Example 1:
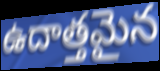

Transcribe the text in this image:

ఉదాత్తమైన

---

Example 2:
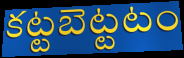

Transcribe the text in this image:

కట్టబెట్టటం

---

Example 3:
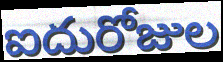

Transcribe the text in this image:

ఐదురోజుల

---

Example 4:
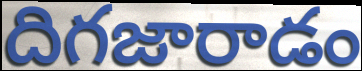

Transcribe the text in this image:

దిగజారాడం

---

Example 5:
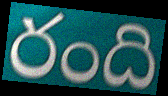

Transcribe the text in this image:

రంది